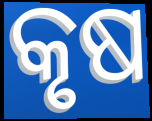
କୃଷ